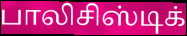
பாலிசிஸ்டிக்